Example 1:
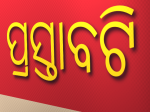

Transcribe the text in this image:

ପ୍ରସ୍ତାବଟି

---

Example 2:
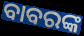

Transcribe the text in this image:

ବାବରଙ୍କ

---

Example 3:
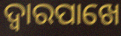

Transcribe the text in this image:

ଦ୍ୱାରପାଖେ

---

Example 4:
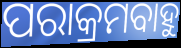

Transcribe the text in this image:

ପରାକ୍ରମବାହୁ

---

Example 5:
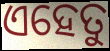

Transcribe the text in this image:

ଏହେତୁ